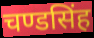
चण्डसिंह